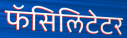
फॅसिलिटेटर